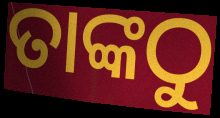
ତାଙ୍କଠୁ